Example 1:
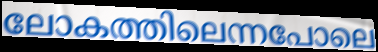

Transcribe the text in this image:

ലോകത്തിലെന്നപോലെ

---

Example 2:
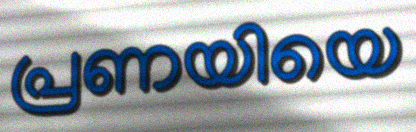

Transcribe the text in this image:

പ്രണയിയെ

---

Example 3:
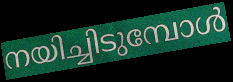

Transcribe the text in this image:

നയിച്ചിടുമ്പോൾ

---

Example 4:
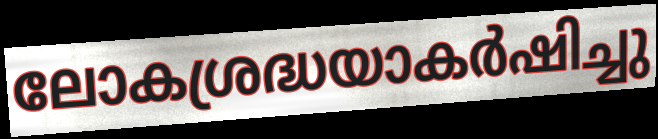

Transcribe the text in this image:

ലോകശ്രദ്ധയാകർഷിച്ചു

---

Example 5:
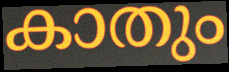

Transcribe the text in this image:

കാതും